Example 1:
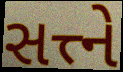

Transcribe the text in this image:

સત્ત્ને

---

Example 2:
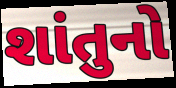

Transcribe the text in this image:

શાંતુનો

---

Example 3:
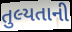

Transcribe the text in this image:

તુલ્યતાની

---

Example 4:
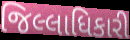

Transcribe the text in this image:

જિલ્લાધિકારી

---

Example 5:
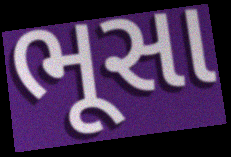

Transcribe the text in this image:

ભૂસા